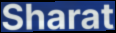
Sharat